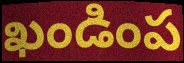
ఖండింప